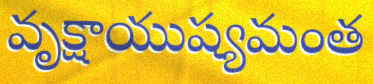
వృక్షాయుష్యమంత